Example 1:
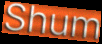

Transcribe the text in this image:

Shum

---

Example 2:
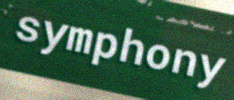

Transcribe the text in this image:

symphony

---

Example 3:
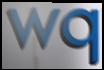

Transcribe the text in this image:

wq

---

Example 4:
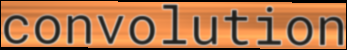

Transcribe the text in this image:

convolution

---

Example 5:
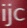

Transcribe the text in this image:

ijc